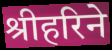
श्रीहरिने